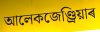
আলেকজেণ্ড্ৰিয়াৰ